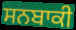
ਸਨਬਾਕੀ